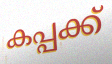
കപ്പക്ക്